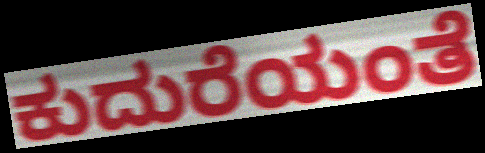
ಕುದುರೆಯಂತೆ